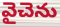
వైచెను